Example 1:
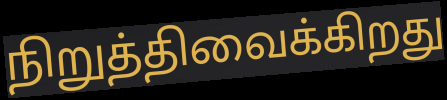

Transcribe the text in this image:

நிறுத்திவைக்கிறது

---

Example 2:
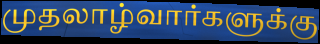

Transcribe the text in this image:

முதலாழ்வார்களுக்கு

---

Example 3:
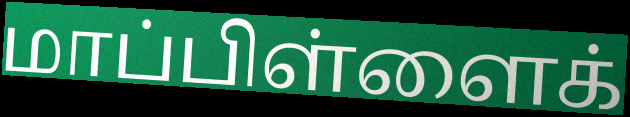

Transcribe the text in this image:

மாப்பிள்ளைக்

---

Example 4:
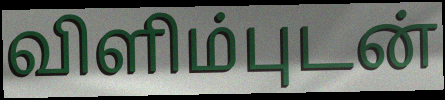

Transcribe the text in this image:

விளிம்புடன்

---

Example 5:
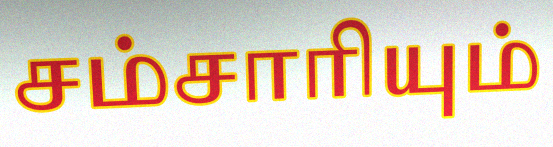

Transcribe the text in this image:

சம்சாரியும்